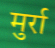
मुर्रा